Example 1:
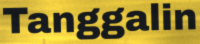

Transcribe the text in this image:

Tanggalin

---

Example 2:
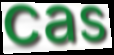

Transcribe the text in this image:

cas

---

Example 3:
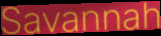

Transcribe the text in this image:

Savannah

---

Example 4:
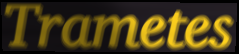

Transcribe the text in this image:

Trametes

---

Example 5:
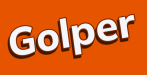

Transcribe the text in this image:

Golper